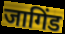
जागिंड